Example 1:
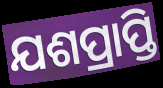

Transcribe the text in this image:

ଯଶପ୍ରାପ୍ତି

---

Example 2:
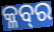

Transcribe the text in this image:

କ୍ଳବ୍‍ର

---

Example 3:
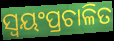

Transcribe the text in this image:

ସ୍ୱୟଂପ୍ରଚାଳିତ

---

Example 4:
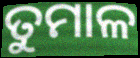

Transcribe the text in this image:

ତୁମାଳ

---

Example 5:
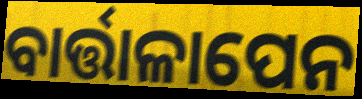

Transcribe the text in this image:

ବାର୍ତ୍ତାଳାପେନ